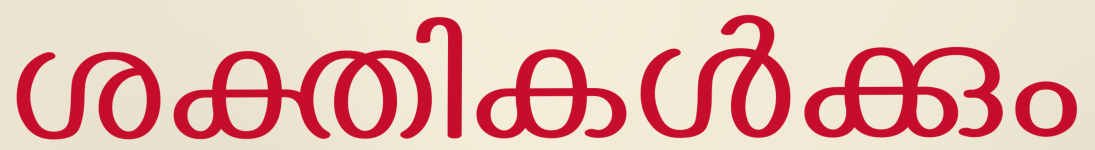
ശക്തികൾക്കും